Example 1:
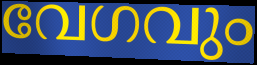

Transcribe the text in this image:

വേഗവും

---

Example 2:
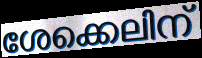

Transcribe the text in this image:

ശേക്കെലിന്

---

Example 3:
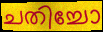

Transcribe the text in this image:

ചതിച്ചോ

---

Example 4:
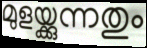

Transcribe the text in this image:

മുളയ്ക്കുന്നതും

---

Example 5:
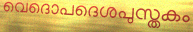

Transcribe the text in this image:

വെദൊപദെശപുസ്തകം